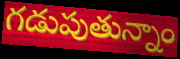
గడుపుతున్నాం